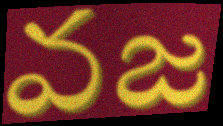
వజ